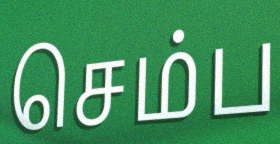
செம்ப